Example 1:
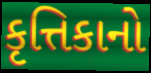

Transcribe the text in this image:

કૃત્તિકાનો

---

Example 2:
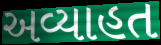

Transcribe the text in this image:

અવ્યાહત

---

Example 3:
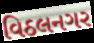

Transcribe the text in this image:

વિઠલનગર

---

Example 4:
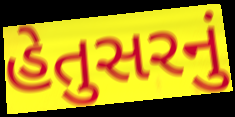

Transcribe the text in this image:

હેતુસરનું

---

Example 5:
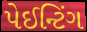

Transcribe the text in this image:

પેઈન્ટિંગ